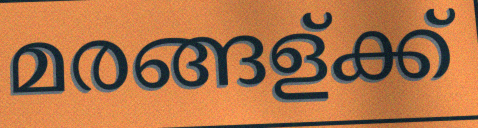
മരങ്ങള്ക്ക്